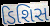
ડિશિસ